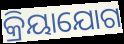
କ୍ରିୟାଯୋଗ